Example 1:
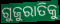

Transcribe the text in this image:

ଗୁଜୁରାତିକୁ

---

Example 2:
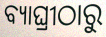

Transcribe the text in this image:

ବ୍ୟାଘ୍ରୀଠାରୁ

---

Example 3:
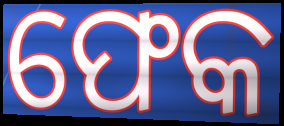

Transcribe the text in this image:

ଫେକ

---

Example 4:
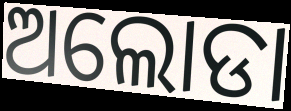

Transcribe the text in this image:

ଅଲୋଡା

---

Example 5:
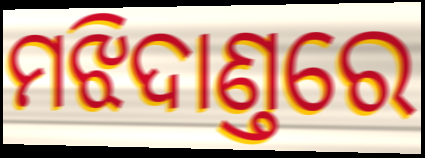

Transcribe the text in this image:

ମଝିଦାଣ୍ତରେ